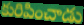
కురిపించాడు